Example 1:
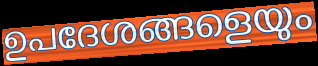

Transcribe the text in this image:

ഉപദേശങ്ങളെയും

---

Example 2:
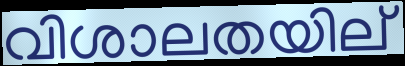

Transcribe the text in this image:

വിശാലതയില്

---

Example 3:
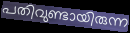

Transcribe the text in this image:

പതിവുണ്ടായിരുന്ന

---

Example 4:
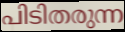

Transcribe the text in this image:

പിടിതരുന്ന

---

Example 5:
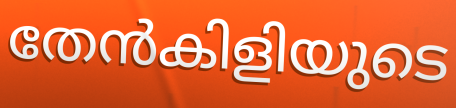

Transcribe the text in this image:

തേൻകിളിയുടെ